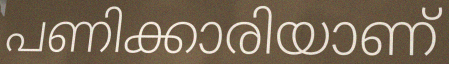
പണിക്കാരിയാണ്